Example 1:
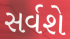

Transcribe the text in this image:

સર્વશે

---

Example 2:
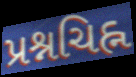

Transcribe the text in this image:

પ્રશ્નચિહ્ન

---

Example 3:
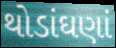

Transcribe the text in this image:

થોડાંઘણાં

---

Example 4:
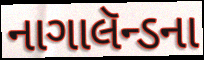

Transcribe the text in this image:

નાગાલૅન્ડના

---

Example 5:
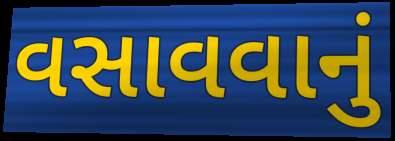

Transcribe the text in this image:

વસાવવાનું